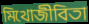
মিথোজীবিতা